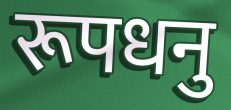
रूपधनु